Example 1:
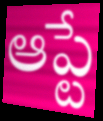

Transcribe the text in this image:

ఆప్టే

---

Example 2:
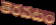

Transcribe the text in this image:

తెరవటం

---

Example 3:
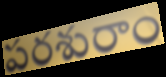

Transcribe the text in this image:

పరశురాం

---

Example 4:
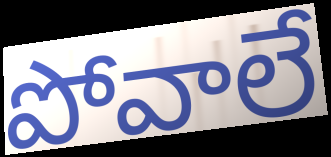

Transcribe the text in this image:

పోవాలే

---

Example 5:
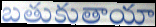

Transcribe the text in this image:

బతుకుతాయా